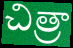
చిత్రా